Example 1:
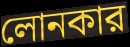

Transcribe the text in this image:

লোনকার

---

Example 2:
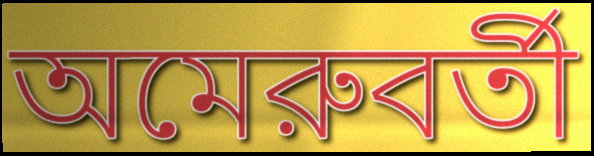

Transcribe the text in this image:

অমেরুবর্তী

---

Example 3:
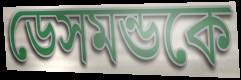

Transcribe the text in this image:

ডেসমন্ডকে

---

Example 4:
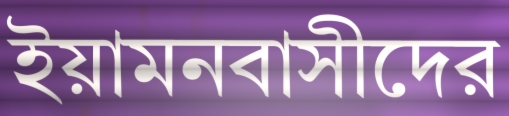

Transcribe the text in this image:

ইয়ামনবাসীদের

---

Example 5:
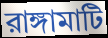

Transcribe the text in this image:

রাঙ্গামাটি